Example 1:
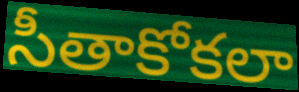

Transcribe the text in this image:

సీతాకోకలా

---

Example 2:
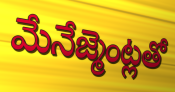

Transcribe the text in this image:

మేనేజ్మెంట్లతో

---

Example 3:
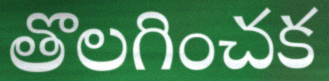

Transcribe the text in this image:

తొలగించక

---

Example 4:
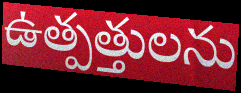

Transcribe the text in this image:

ఉత్పత్తులను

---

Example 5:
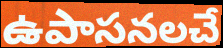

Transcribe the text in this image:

ఉపాసనలచే